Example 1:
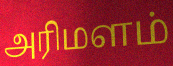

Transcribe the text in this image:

அரிமளம்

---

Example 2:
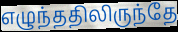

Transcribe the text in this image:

எழுந்ததிலிருந்தே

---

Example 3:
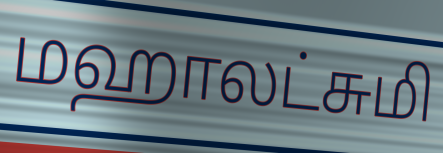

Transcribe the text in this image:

மஹாலட்சுமி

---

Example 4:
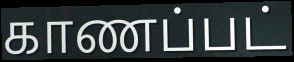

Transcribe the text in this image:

காணப்பட்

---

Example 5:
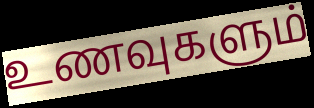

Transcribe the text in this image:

உணவுகளும்